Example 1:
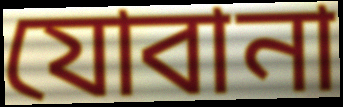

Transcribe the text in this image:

যোবানা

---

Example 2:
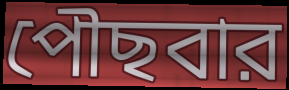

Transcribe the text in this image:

পৌছবার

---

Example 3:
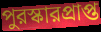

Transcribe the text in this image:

পুরস্কারপ্রাপ্ত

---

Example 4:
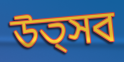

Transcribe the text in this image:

উত্সব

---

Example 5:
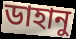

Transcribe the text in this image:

ডাহানু